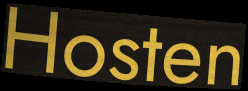
Hosten